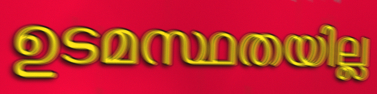
ഉടമസ്ഥതയില്ല